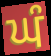
ਘੰ